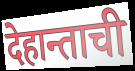
देहान्ताची